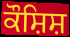
ਕੌਸ਼ਿਸ਼